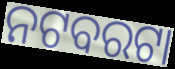
ନଟବରଟା